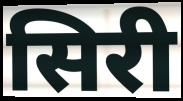
सिरी